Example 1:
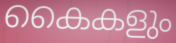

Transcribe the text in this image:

കൈകളും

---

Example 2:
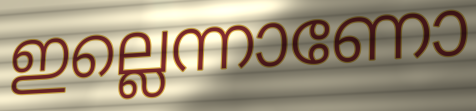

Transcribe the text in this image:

ഇല്ലെന്നാണോ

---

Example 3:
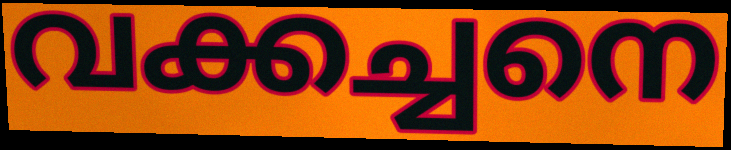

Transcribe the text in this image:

വക്കച്ചനെ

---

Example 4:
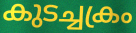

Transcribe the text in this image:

കുടച്ചക്രം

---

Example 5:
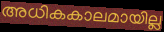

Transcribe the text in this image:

അധികകാലമായില്ല